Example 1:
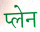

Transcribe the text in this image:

प्लेन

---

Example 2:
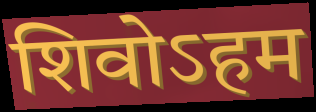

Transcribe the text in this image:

शिवोऽहम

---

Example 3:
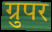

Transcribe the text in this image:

ग्रुपर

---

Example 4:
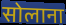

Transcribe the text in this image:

सोलाना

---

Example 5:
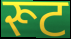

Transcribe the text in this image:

रूट